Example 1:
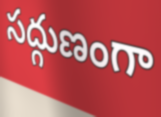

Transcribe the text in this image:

సద్గుణంగా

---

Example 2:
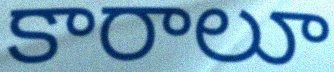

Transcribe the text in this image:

కారాలూ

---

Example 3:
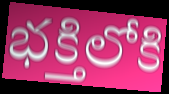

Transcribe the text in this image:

భక్తిలోకి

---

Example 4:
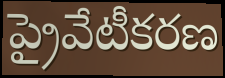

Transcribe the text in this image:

ప్రైవేటీకరణ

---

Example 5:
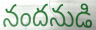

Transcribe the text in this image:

నందనుడి